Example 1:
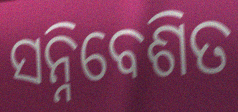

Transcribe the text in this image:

ସନ୍ନିବେଶିତ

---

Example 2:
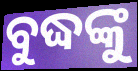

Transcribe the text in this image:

ବୁଦ୍ଧଙ୍କୁ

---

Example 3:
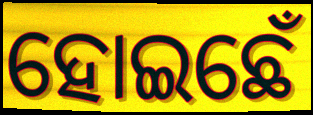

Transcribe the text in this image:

ହୋଇଛେଁ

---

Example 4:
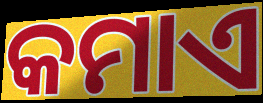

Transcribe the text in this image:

କମାଏ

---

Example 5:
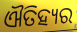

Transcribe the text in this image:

ଐତିହ୍ୟର